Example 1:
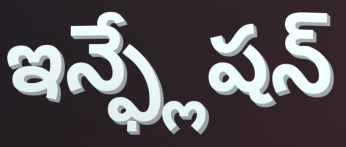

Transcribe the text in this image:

ఇన్ఫ్లేషన్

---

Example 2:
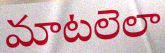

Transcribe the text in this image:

మాటలెలా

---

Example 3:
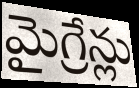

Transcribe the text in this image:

మైగ్రేన్లు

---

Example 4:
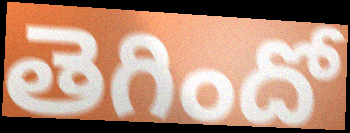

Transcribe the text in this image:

తెగిందో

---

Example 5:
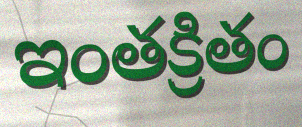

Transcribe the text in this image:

ఇంతక్రితం